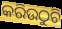
କରିଉଠୁଚି